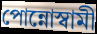
পোন্নোস্বামী